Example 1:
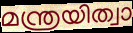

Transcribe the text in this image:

മന്ത്രയിത്വാ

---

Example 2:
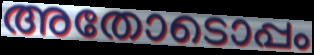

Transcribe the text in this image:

അതോടൊപ്പം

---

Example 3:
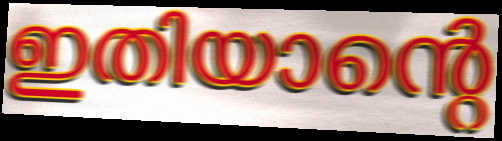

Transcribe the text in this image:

ഇതിയാന്റെ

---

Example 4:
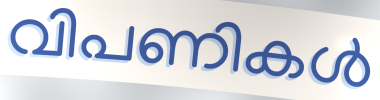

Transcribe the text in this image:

വിപണികൾ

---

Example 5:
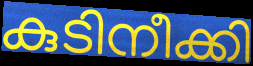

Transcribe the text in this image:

കുടിനീക്കി